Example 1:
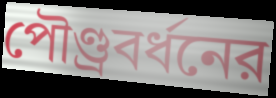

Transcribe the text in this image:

পৌণ্ড্রবর্ধনের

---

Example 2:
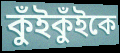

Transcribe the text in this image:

কুঁইকুঁইকে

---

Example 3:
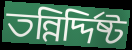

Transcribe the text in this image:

তন্নির্দ্দিষ্ট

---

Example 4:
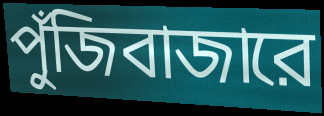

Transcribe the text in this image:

পুঁজিবাজারে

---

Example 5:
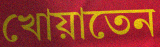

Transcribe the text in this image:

খোয়াতেন